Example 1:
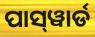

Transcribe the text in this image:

ପାସ୍‌ୱାର୍ଡ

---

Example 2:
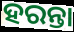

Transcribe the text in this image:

ହରନ୍ତା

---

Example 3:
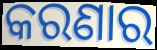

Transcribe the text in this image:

କରଣାର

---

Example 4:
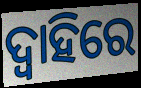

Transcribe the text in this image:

ଦ୍ୱାହିରେ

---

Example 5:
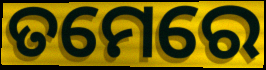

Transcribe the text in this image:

ତମେରେ